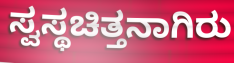
ಸ್ವಸ್ಥಚಿತ್ತನಾಗಿರು